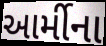
આર્મીના